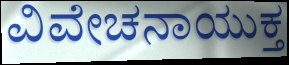
ವಿವೇಚನಾಯುಕ್ತ